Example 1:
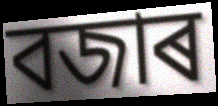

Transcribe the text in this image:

বজাৰ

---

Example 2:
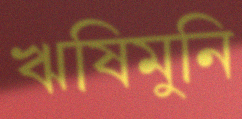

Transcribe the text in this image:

ঋষিমুনি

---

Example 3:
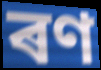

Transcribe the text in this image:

ৰণ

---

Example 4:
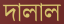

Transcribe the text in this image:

দালাল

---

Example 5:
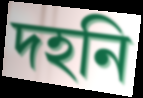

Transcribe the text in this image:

দহনি